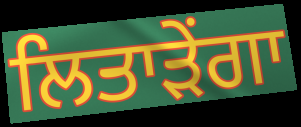
ਲਿਤਾੜੇਂਗਾ